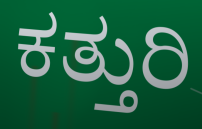
ಕತ್ತುರಿ